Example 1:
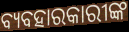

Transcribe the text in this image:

ବ୍ୟବହାରକାରୀଙ୍କ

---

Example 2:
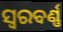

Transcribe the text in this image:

ସ୍ୱରବର୍ଣ୍ଣ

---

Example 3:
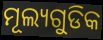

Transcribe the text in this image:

ମୂଲ୍ୟଗୁଡିକ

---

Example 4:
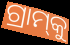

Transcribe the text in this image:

ଗ୍ରାମ୍‌କୁ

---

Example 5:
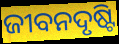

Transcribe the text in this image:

ଜୀବନଦୃଷ୍ଟି